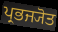
ਪ੍ਰਭਜ੍ਯੋਤ